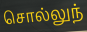
சொல்லுந்